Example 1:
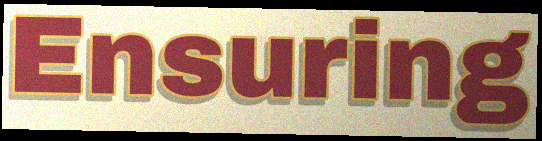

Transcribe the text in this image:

Ensuring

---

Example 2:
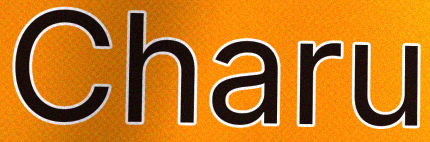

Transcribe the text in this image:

Charu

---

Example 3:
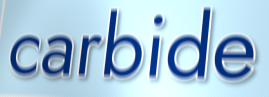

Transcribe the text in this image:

carbide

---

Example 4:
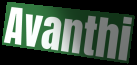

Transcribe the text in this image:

Avanthi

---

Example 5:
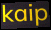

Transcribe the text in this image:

kaip